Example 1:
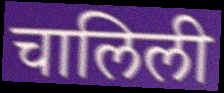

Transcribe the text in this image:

चालिली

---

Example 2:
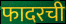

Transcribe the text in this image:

फादरची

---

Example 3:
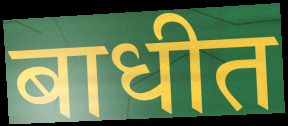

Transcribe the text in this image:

बाधीत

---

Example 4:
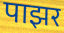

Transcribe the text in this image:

पाझर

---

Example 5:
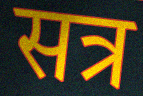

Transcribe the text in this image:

सत्र